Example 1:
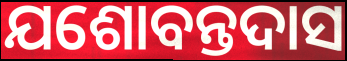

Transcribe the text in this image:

ଯଶୋବନ୍ତଦାସ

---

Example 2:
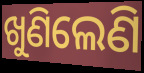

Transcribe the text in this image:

ଖୁଣିଲେଣି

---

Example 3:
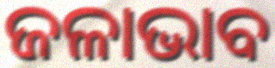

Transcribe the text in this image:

ଜଳାଭାବ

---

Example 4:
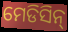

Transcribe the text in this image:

ମେଡିସିନ୍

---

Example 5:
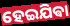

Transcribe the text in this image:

ହେଇଯିଵା